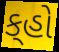
ક્‌હો